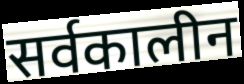
सर्वकालीन